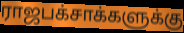
ராஜபக்சாக்களுக்கு